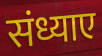
संध्याए